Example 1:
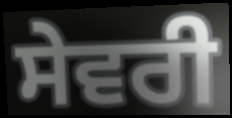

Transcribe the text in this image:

ਸੇਵਰੀ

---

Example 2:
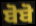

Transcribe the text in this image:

ਬੋਬੋ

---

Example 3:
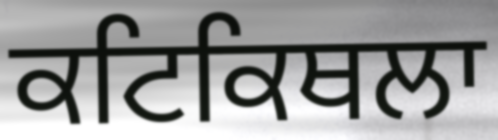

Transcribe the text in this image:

ਕਟਿਕਿਥਲਾ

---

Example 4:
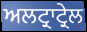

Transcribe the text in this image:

ਅਲਟ੍ਰਾਟ੍ਰੇਲ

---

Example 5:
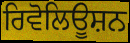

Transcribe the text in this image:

ਰਿਵੋਲਿਊਸ਼ਨ